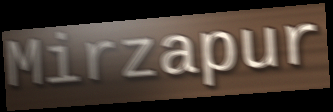
Mirzapur